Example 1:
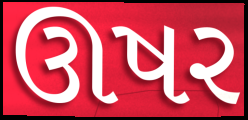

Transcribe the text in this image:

ઊષર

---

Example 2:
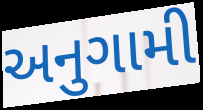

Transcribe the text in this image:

અનુગામી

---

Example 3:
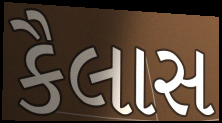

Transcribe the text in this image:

કૈલાસ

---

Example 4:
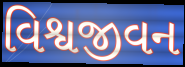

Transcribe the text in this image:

વિશ્વજીવન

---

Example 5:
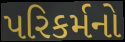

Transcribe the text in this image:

પરિકર્મનો